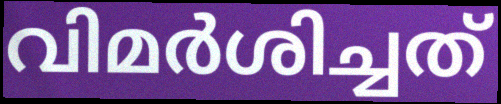
വിമർശിച്ചത്